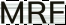
MRF